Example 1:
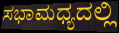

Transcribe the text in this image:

ಸಭಾಮಧ್ಯದಲ್ಲಿ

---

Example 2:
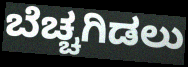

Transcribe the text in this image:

ಬೆಚ್ಚಗಿಡಲು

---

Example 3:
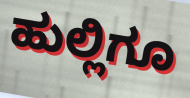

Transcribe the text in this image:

ಹುಲ್ಲಿಗೂ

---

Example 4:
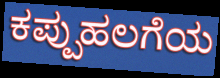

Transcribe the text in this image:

ಕಪ್ಪುಹಲಗೆಯ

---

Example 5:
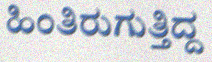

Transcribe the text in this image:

ಹಿಂತಿರುಗುತ್ತಿದ್ದ